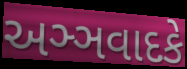
અઞ્ઞવાદકે